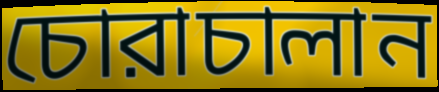
চোরাচালান